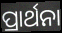
ପ୍ରାର୍ଥନା